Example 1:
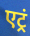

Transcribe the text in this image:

एट्रं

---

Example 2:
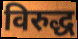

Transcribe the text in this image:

विरुद्ध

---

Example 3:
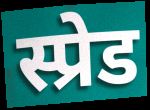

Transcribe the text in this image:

स्प्रेड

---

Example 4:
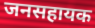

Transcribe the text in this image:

जनसहायक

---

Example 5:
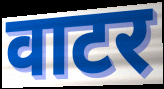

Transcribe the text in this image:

वाटर